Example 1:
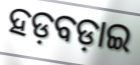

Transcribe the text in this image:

ହଡ଼ବଡ଼ାଇ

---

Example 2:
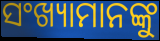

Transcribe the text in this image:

ସଂଖ୍ୟାମାନଙ୍କୁ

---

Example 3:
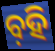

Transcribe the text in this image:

ବ଼ହି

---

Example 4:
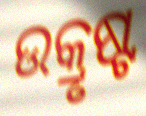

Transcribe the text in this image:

ଉକ୍ରୃଷ୍ଟ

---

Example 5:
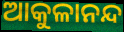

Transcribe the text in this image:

ଆକୁଳାନନ୍ଦ